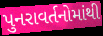
પુનરાવર્તનોમાંથી